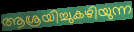
ആശ്രയിച്ചുകഴിയുന്ന